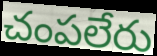
చంపలేరు